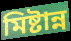
মিষ্টান্ন